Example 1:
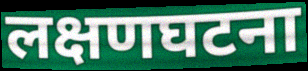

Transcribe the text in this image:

लक्षणघटना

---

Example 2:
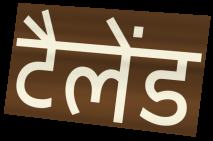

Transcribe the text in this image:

टैलेंड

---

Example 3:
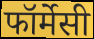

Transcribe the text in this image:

फॉर्मेसी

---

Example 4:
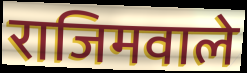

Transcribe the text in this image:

राजिमवाले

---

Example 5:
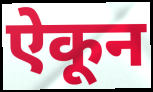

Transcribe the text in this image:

ऐकून